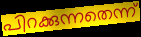
പിറക്കുന്നതെന്ന്